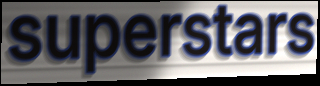
superstars